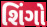
શિંગો